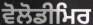
ਵੋਲੋਡੀਮਿਰ